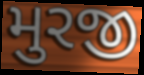
મુરજી